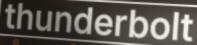
thunderbolt